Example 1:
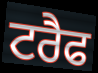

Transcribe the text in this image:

ਟਰੈਫ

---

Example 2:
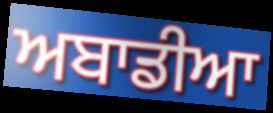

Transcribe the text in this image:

ਅਬਾਡੀਆ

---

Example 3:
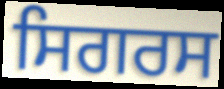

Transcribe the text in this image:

ਸਿਗਰਸ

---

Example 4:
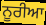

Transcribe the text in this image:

ਨੂਰੀਆ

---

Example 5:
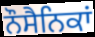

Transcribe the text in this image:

ਨੌਸੈਨਿਕਾਂ